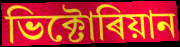
ভিক্টোৰিয়ান